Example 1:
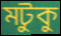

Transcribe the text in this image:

মটুকু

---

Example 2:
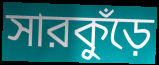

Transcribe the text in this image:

সারকুঁড়ে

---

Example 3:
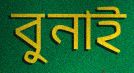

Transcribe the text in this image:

বুনাই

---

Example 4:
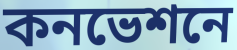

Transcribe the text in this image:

কনভেশনে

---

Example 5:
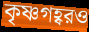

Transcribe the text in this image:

কৃষ্ণগহ্বরও